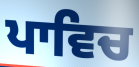
ਪਾਵਿਚ